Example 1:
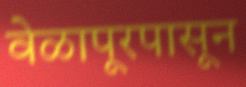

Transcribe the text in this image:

वेळापूरपासून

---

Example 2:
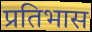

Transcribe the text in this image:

प्रतिभास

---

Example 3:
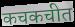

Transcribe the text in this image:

कचकचीत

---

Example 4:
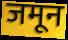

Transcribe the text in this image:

जमून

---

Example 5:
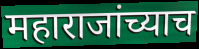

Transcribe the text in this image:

महाराजांच्याच